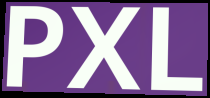
PXL